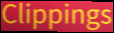
Clippings